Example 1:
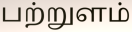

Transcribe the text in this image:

பற்றுளம்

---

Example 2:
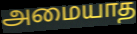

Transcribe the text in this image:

அமையாத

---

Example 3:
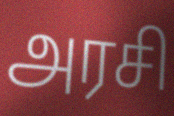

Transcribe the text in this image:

அரசி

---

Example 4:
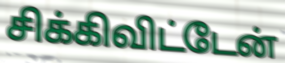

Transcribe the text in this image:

சிக்கிவிட்டேன்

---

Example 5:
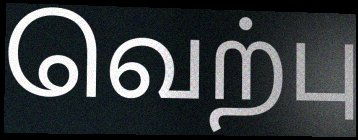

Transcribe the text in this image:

வெற்பு